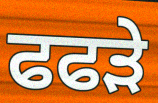
ਫਫਡ਼ੇ